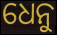
ଧେନୁ